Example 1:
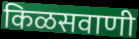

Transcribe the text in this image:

किळसवाणी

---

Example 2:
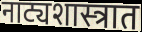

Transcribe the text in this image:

नाट्यशास्त्रात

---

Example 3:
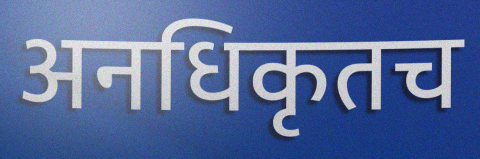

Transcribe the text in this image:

अनधिकृतच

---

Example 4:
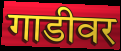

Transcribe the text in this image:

गाडीवर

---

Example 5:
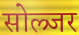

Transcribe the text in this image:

सोल्जर